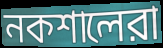
নকশালেরা